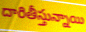
దారితీస్తున్నాయి